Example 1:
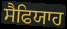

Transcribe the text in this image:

ਸੈਫਿਯਾਹ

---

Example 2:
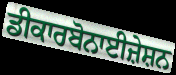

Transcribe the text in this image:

ਡੀਕਾਰਬੋਨਾਈਜ਼ੇਸ਼ਨ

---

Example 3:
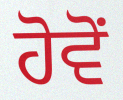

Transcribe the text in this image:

ਹੋਵੋਂ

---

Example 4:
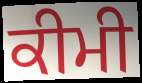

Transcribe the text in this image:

ਕੀਮੀ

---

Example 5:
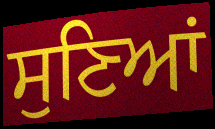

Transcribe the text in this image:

ਸੁਣਿਆਂ